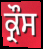
ਕ੍ਰੌਸ